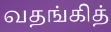
வதங்கித்